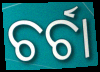
ଚର୍ଚା